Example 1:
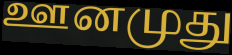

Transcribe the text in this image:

ஊனமுது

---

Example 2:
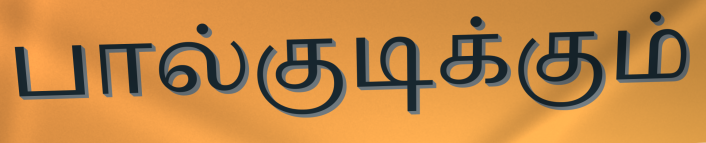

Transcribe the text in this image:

பால்குடிக்கும்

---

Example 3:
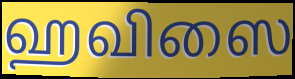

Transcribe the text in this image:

ஹவிஸை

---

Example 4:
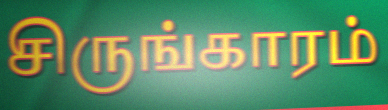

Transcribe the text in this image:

சிருங்காரம்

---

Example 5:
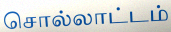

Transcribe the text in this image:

சொல்லாட்டம்